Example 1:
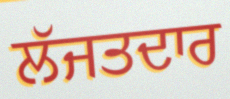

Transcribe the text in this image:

ਲੱਜਤਦਾਰ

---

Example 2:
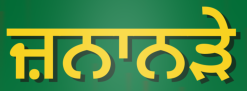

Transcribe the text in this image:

ਜ਼ਨਾਨੜੇ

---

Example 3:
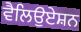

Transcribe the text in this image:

ਵੈਲਿਉਏਸ਼ਨ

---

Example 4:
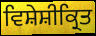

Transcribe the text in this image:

ਵਿਸ਼ੇਸ਼ੀਕ੍ਰਿਤ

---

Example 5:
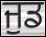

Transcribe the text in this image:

ਜੁਡ